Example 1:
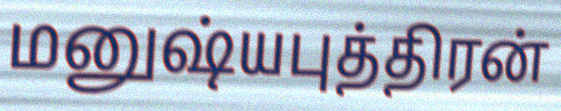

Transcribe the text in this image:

மனுஷ்யபுத்திரன்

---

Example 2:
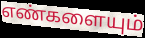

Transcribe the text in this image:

எண்களையும்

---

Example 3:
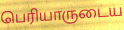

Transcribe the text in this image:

பெரியாருடைய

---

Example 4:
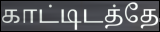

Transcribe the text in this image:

காட்டிடத்தே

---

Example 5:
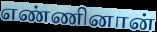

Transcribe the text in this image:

எண்ணினான்